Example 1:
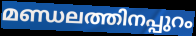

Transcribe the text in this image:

മണ്ഡലത്തിനപ്പുറം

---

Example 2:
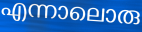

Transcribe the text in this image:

എന്നാലൊരു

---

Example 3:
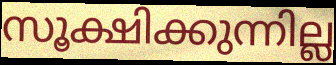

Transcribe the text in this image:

സൂക്ഷിക്കുന്നില്ല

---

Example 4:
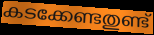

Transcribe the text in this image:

കടക്കേണ്ടതുണ്ട്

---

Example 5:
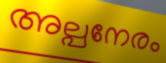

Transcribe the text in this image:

അല്പനേരം